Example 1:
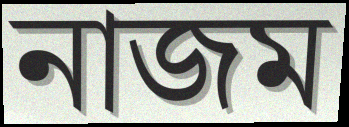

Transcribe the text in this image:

নাজম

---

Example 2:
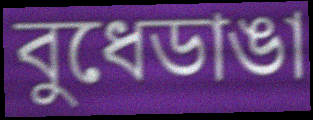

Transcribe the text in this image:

বুধেডাঙা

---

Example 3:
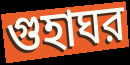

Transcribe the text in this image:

গুহাঘর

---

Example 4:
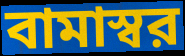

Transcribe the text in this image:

বামাস্বর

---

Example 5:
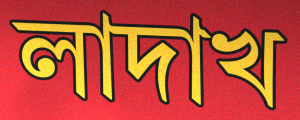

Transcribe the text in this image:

লাদাখ